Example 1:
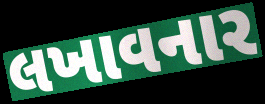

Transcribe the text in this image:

લખાવનાર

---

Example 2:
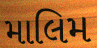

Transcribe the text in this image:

માલિમ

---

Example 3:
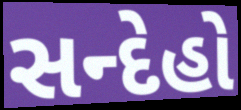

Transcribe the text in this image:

સન્દેહો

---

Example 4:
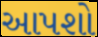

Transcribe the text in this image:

આપશો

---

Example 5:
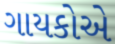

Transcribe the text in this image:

ગાયકોએ